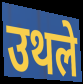
उथले